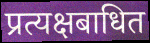
प्रत्यक्षबाधित